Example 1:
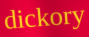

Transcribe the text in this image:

dickory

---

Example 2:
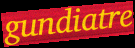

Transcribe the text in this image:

gundiatre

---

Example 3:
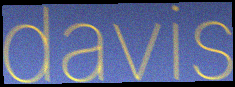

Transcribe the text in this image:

davis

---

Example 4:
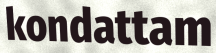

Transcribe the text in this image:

kondattam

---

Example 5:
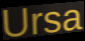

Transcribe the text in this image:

Ursa